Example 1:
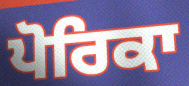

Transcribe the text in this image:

ਪੋਰਿਕਾ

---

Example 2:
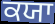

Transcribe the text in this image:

ਕਯਾ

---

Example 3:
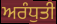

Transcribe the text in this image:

ਅਰੰਧੁਤੀ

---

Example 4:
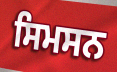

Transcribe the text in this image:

ਸਿਮਸਨ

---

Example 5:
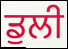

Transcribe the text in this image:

ਡੁਲੀ